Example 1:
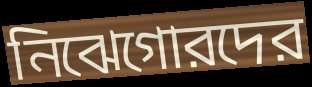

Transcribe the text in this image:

নিঝেগোরদের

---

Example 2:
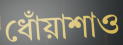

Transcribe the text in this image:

ধোঁয়াশাও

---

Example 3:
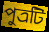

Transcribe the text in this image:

পুত্রটি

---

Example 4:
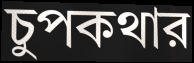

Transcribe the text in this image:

চুপকথার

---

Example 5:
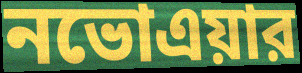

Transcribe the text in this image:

নভোএয়ার